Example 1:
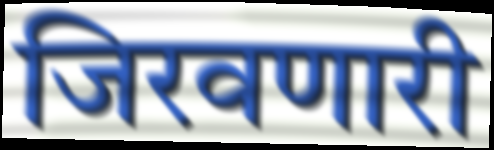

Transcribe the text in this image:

जिरवणारी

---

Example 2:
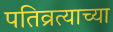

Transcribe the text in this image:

पतिव्रत्याच्या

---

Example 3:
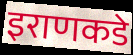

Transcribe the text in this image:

इराणकडे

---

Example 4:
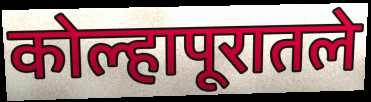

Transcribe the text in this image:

कोल्हापूरातले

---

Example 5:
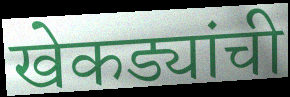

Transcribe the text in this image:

खेकड्यांची